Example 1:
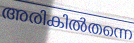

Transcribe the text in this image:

അരികിൽതന്നെ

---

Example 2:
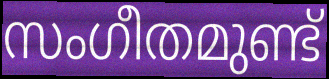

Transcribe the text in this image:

സംഗീതമുണ്ട്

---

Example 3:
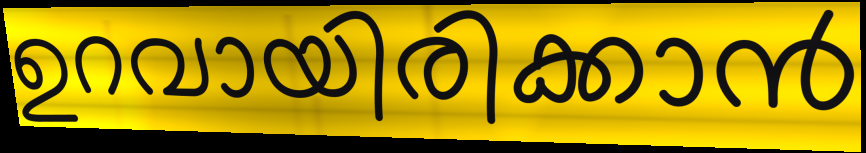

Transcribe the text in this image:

ഉറവായിരിക്കാൻ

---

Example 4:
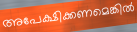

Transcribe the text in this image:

അപേക്ഷിക്കണമെങ്കിൽ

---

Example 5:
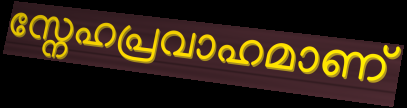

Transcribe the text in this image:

സ്നേഹപ്രവാഹമാണ്